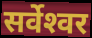
सर्वेश्‍वर